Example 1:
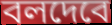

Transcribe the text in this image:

বলদেবে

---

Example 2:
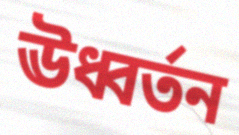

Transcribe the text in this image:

ঊধ্বর্তন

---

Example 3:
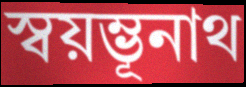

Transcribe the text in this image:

স্বয়ম্ভূনাথ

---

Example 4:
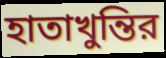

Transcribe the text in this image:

হাতাখুন্তির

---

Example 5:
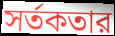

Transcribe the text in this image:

সর্তকতার